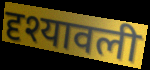
दृश्यावली